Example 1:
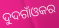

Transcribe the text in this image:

ଦୁଦଗାଁଓକର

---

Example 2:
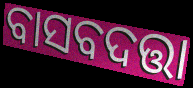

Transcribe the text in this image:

ବାସବଦତ୍ତା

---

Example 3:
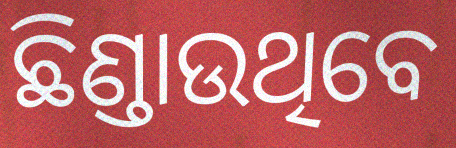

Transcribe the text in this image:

ଛିଣ୍ଡାଉଥିବେ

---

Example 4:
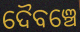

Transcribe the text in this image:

ଦୈବଞ୍ଚେ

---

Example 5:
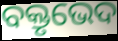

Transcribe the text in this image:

ବକ୍ତୃଭେଦ